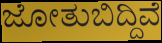
ಜೋತುಬಿದ್ದಿವೆ